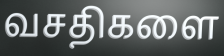
வசதிகளை